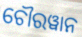
ଚୌରୱାନ